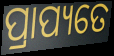
ପ୍ରାପ୍ୟତେ